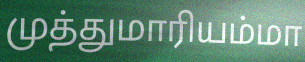
முத்துமாரியம்மா